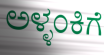
ಅಳ್ಳಂಕಿಗೆ